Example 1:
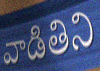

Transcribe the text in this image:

వాడితిని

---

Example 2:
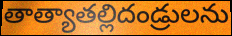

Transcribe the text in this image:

తాత్యాతల్లిదండ్రులను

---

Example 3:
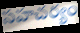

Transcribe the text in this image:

సహచర్యం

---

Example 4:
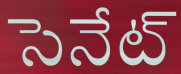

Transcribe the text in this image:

సెనేట్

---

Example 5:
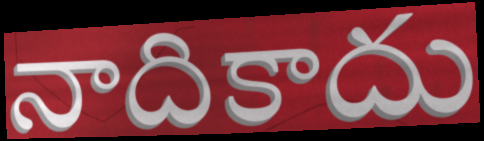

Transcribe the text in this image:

నాదికాదు